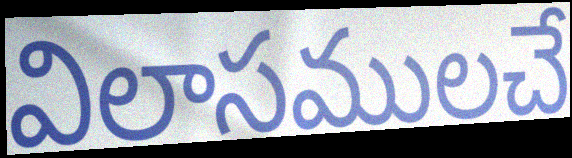
విలాసములచే